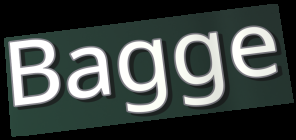
Bagge